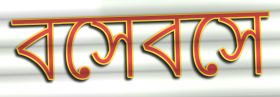
বসেবসে